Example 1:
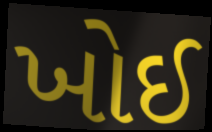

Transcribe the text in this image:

ખોઈ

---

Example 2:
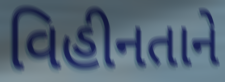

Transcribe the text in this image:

વિહીનતાને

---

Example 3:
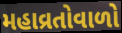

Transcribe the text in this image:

મહાવ્રતોવાળો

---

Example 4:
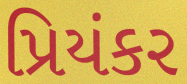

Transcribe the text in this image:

પ્રિયંકર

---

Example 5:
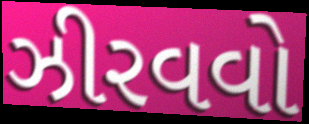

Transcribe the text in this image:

ઝીરવવો